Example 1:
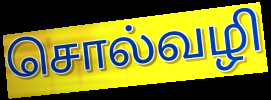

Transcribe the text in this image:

சொல்வழி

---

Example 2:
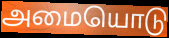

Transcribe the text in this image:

அமையொடு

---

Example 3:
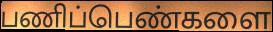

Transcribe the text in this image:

பணிப்பெண்களை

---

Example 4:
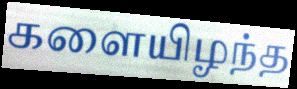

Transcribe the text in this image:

களையிழந்த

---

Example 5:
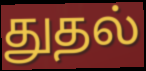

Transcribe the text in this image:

துதல்